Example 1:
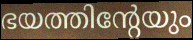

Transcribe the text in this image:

ഭയത്തിന്റേയും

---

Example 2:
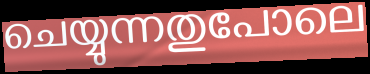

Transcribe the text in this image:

ചെയ്യുന്നതുപോലെ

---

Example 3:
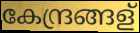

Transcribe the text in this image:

കേന്ദ്രങ്ങള്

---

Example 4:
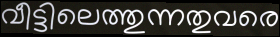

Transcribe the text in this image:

വീട്ടിലെത്തുന്നതുവരെ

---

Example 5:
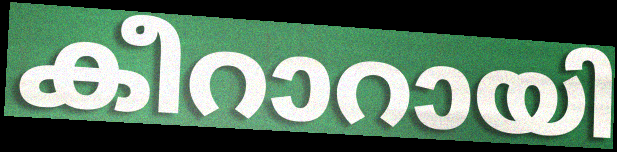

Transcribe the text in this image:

കീറാറായി